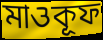
মাওকূফ